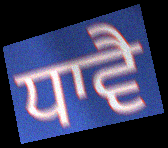
ਧਾਵੈ